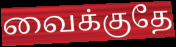
வைக்குதே